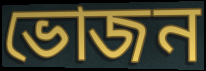
ভোজন